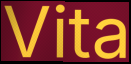
Vita